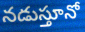
నడుస్తూనో